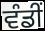
ਵੰਡੀਂ